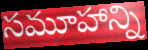
సమూహాన్ని